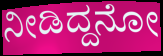
ನೀಡಿದ್ದನೋ